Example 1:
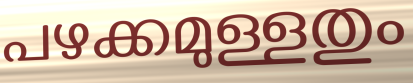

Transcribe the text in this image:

പഴക്കമുള്ളതും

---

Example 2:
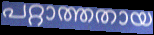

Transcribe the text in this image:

പറ്റാത്തതായ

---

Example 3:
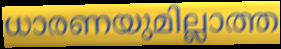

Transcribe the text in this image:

ധാരണയുമില്ലാത്ത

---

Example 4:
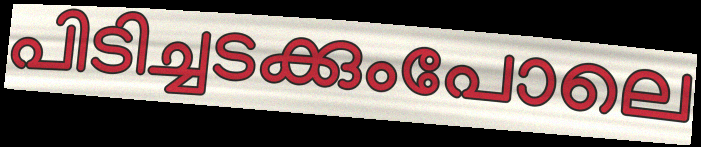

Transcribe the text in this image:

പിടിച്ചടക്കുംപോലെ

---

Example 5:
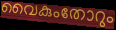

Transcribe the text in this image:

വൈകുംതോറും